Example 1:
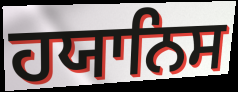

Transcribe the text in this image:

ਹਯਾਨਿਸ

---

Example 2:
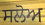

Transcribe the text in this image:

ਸਲੋਅ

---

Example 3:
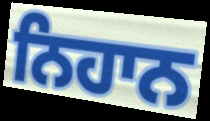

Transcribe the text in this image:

ਨਿਹਾਨ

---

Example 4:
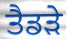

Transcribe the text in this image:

ਤੈਡੜੇ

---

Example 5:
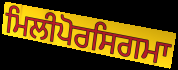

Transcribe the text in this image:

ਮਿਲੀਪੋਰਸਿਗਮਾ